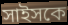
সাইসকে